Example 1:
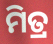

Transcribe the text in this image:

ମିତ୍ର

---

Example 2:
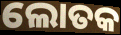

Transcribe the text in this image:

ଲୋତକ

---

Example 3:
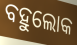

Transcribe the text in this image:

ବହୁଲୋକ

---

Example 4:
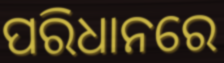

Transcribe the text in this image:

ପରିଧାନରେ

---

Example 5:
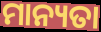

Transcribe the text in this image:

ମାନ୍ୟତା